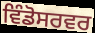
ਵਿੰਡੋਸਰਵਰ